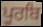
ਪੂਰਬਿ